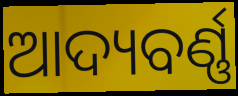
ଆଦ୍ୟବର୍ଣ୍ଣ